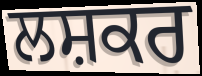
ਲਸ਼ਕਰ